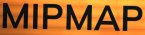
MIPMAP